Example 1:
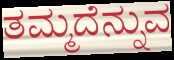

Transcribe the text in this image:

ತಮ್ಮದೆನ್ನುವ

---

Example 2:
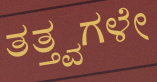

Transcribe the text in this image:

ತತ್ತ್ವಗಳೇ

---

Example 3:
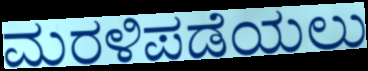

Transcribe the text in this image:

ಮರಳಿಪಡೆಯಲು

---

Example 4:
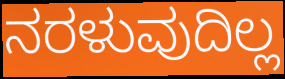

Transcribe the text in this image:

ನರಳುವುದಿಲ್ಲ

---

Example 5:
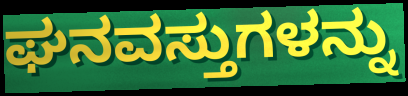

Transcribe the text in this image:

ಘನವಸ್ತುಗಳನ್ನು